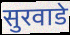
सुरवाडे